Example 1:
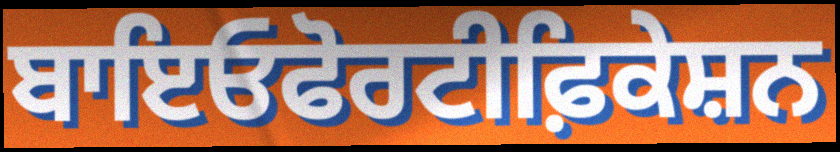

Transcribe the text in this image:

ਬਾਇਓਫੋਰਟੀਫ਼ਿਕੇਸ਼ਨ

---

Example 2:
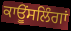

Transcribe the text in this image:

ਕਾਊਂਸਲਿੰਗਾਂ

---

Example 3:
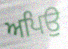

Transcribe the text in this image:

ਅਪਿਉ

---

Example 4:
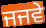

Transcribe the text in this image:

ਜਜਵੇ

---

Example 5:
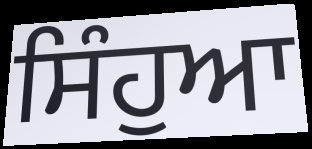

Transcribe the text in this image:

ਸਿੰਹੁਆ